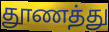
தூணத்து